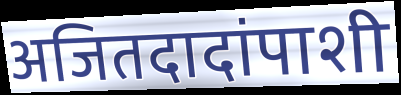
अजितदादांपाशी